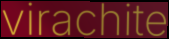
virachite